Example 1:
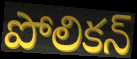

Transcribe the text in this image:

పోలికన్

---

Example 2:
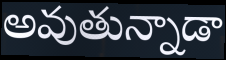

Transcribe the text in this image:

అవుతున్నాడా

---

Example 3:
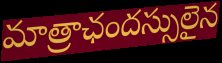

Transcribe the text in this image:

మాత్రాఛందస్సులైన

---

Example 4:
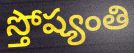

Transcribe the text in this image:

స్తోష్యంతి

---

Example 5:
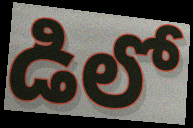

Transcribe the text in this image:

డిలో